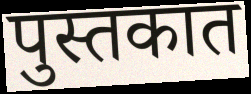
पुस्तकात